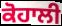
ਕੋਹਾਲੀ